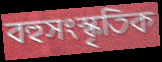
বহুসংস্কৃতিক